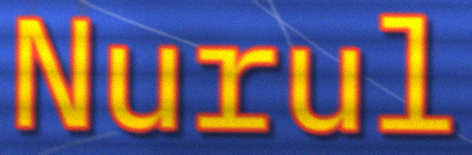
Nurul